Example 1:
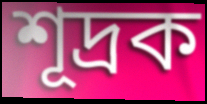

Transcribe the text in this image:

শূদ্ৰক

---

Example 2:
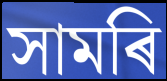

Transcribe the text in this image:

সামৰি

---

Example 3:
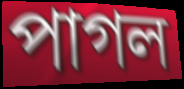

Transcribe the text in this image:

পাগল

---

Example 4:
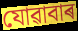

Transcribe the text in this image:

যোৱাবাৰ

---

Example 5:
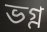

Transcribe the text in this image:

ভগ্ন